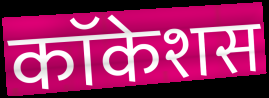
कॉकेशस